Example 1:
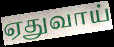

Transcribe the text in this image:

ஏதுவாய்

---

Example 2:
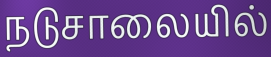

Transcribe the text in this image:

நடுசாலையில்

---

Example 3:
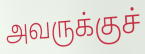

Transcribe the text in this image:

அவருக்குச்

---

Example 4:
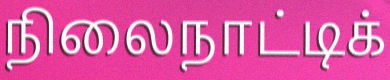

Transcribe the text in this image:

நிலைநாட்டிக்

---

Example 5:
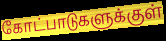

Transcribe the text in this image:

கோட்பாடுகளுக்குள்